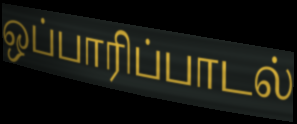
ஒப்பாரிப்பாடல்